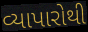
વ્યાપારોથી